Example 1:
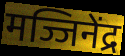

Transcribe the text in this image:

मज्जिनेंद्र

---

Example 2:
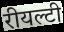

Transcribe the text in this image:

रीयल्टी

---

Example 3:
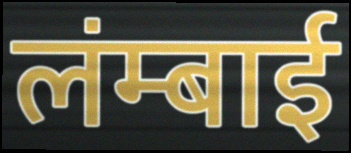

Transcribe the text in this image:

लंम्बाई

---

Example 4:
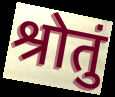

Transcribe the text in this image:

श्रोतुं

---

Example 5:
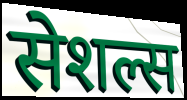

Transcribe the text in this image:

सेशल्स